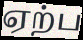
ஏற்ப